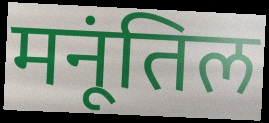
मनूंतिल